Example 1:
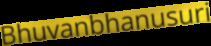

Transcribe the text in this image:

Bhuvanbhanusuri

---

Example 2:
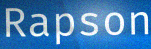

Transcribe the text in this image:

Rapson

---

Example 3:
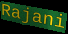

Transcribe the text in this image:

Rajani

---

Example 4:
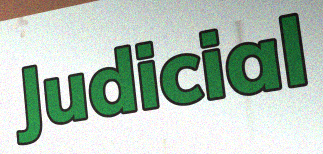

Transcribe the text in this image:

Judicial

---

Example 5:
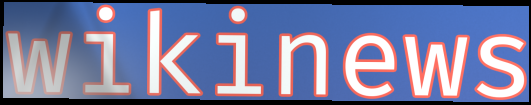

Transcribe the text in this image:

wikinews